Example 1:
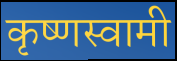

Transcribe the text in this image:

कृष्णस्वामी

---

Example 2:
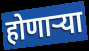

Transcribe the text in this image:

होणार्‍या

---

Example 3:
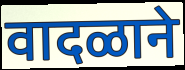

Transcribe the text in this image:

वादळाने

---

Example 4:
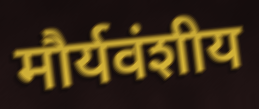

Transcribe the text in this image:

मौर्यवंशीय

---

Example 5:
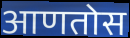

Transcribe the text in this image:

आणतोस